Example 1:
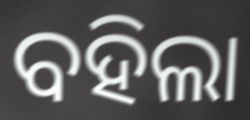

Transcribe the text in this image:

ବହିଲା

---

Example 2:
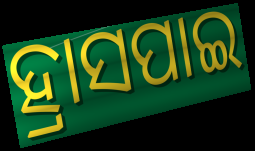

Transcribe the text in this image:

ହ୍ରାସପାଇ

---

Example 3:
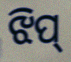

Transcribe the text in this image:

ଝିପ୍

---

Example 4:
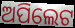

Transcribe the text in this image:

ଅପିଲେଟ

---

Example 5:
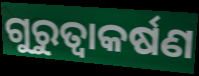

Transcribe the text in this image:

ଗୁରୁତ୍ଵାକର୍ଷଣ